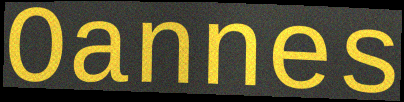
Oannes